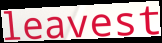
leavest